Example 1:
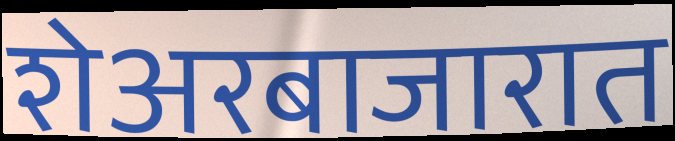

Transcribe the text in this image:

शेअरबाजारात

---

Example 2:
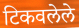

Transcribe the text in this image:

टिकवलेले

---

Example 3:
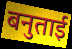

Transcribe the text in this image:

बनुताई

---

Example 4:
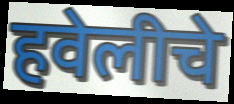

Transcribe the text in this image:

हवेलीचे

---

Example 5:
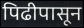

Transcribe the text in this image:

पिढीपासून